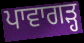
ਪਾਵਾਗੜ੍ਹ